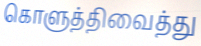
கொளுத்திவைத்து